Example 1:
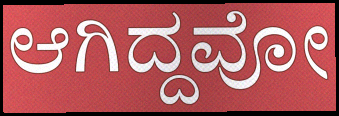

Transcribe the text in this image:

ಆಗಿದ್ದವೋ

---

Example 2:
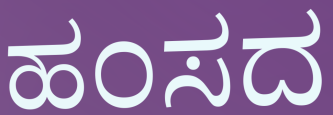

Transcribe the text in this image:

ಹಂಸದ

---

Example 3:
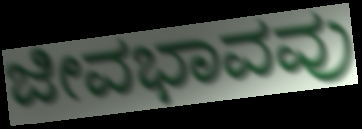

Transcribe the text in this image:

ಜೀವಭಾವವು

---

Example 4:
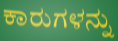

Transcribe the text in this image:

ಕಾರುಗಳನ್ನು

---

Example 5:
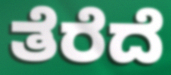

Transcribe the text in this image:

ತೆರೆದೆ